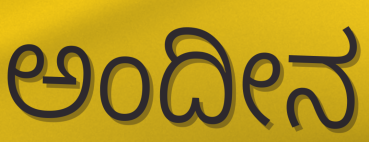
ಅಂದೀನ